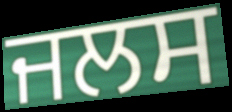
ਜਲਸ